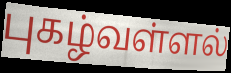
புகழ்வள்ளல்